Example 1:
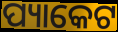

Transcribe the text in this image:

ପ୍ୟାକେଟ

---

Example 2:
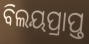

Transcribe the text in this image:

ବିଲୟପ୍ରାପ୍ତ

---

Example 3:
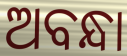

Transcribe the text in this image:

ଅବନ୍ଧା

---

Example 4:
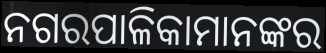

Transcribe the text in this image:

ନଗରପାଳିକାମାନଙ୍କର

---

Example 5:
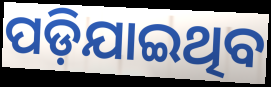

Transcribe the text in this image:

ପଡ଼ିଯାଇଥିବ